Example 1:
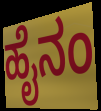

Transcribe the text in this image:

ಹೈನಂ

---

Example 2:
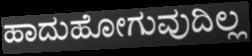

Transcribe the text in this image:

ಹಾದುಹೋಗುವುದಿಲ್ಲ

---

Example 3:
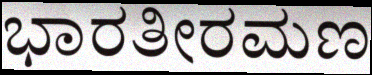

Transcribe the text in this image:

ಭಾರತೀರಮಣ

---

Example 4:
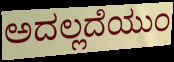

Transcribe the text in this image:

ಅದಲ್ಲದೆಯುಂ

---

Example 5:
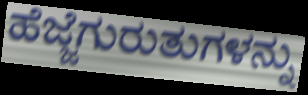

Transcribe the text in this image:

ಹೆಜ್ಜೆಗುರುತುಗಳನ್ನು